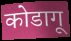
कोडागू